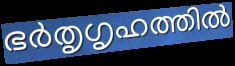
ഭർതൃഗൃഹത്തിൽ